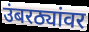
उंबरठ्यांवर